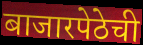
बाजारपेठेची